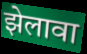
झेलावा